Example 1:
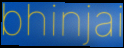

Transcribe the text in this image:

bhinjai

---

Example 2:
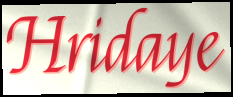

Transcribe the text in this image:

Hridaye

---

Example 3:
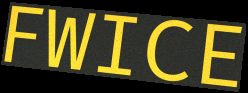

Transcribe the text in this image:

FWICE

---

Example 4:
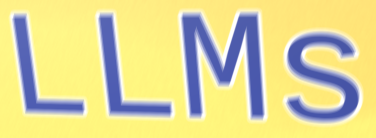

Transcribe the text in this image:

LLMs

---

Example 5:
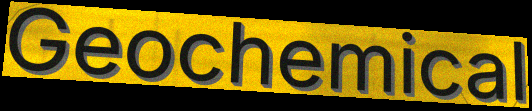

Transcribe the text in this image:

Geochemical